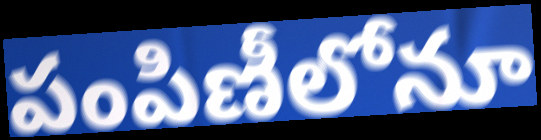
పంపిణీలోనూ